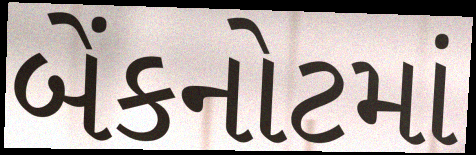
બેંકનોટમાં